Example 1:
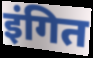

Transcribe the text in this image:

इंगित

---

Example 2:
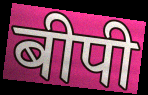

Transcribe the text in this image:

बीपी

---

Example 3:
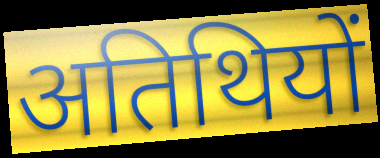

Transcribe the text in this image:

अतिथियों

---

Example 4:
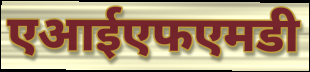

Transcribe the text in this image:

एआईएफएमडी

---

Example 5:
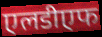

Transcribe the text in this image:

एलडीएफ